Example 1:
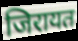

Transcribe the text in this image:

जिरायत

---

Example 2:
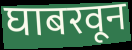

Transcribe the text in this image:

घाबरवून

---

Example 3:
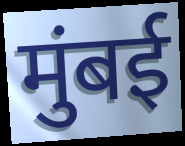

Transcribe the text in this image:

मुंबई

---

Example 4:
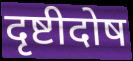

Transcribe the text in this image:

दृष्टीदोष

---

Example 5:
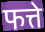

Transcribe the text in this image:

फत्ते